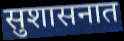
सुशासनात